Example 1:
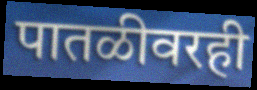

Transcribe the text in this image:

पातळीवरही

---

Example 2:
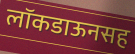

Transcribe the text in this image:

लॉकडाऊनसह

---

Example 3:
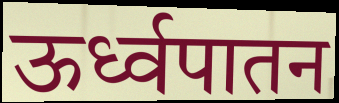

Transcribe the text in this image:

ऊर्ध्वपातन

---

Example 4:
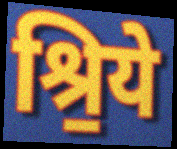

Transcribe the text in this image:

श्रि॒ये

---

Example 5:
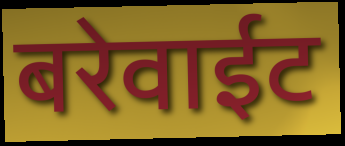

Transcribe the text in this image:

बरेवाईट